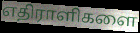
எதிராளிகளை